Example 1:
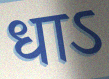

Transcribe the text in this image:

धाऽ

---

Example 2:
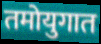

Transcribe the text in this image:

तमोयुगात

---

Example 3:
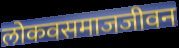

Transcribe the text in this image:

लोकवसमाजजीवन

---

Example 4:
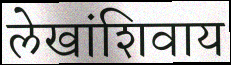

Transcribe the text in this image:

लेखांशिवाय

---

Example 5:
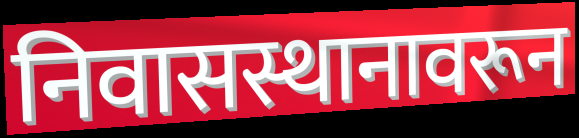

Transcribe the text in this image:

निवासस्थानावरून